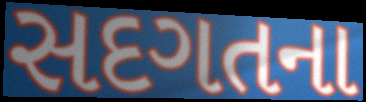
સદગતના